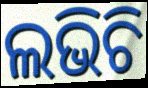
ଲଭିଚି